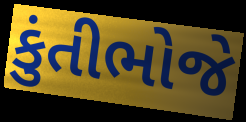
કુંતીભોજે